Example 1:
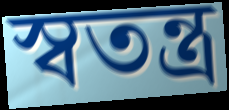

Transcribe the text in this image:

স্ৱতন্ত্ৰ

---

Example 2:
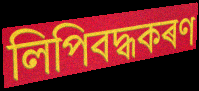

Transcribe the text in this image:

লিপিবদ্ধকৰণ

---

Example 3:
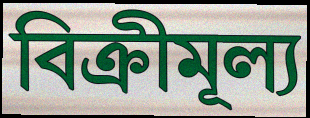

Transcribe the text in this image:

বিক্ৰীমূল্য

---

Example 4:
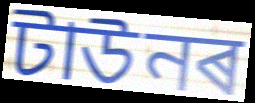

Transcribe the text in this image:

টাউনৰ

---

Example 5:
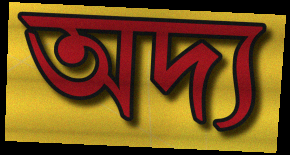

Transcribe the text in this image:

অদ্য